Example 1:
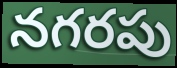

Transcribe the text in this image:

నగరపు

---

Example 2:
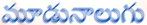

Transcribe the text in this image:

మూడునాలుగు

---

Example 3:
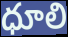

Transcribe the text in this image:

ధూలి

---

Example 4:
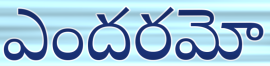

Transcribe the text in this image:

ఎందరమో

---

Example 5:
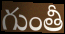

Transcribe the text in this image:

గుంతీ